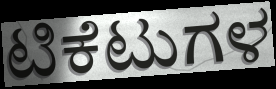
ಟಿಕೆಟುಗಳ